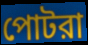
পোটরা